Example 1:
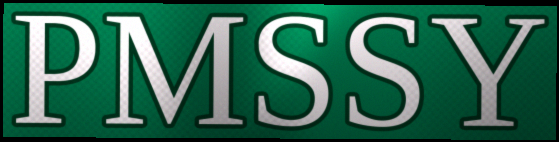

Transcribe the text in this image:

PMSSY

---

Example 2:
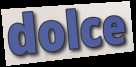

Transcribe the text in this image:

dolce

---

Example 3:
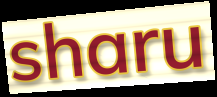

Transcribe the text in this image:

sharu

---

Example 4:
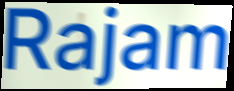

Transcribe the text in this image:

Rajam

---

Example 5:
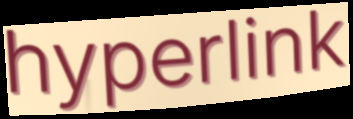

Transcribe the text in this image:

hyperlink